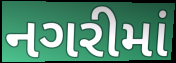
નગરીમાં